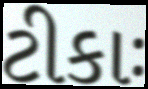
ટીકાઃ